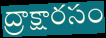
ద్రాక్షారసం